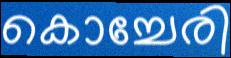
കൊച്ചേരി